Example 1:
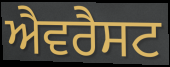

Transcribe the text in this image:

ਐਵਰੈਸਟ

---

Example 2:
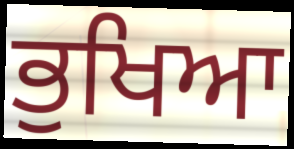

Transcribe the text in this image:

ਭੁਖਿਆ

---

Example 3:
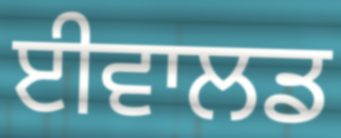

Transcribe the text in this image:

ਈਵਾਲਡ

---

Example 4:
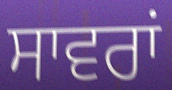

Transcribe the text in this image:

ਸਾਵਰਾਂ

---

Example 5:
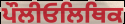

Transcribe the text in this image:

ਪੌਲੀਓਲਿਥਿਕ